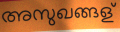
അസുഖങ്ങള്